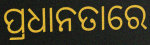
ପ୍ରଧାନତାରେ